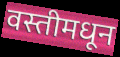
वस्तीमधून